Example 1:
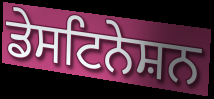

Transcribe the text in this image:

ਡੇਸਟਿਨੇਸ਼ਨ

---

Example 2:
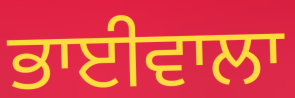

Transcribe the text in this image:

ਭਾਈਵਾਲਾ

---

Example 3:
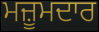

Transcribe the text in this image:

ਮਜ਼ੂਮਦਾਰ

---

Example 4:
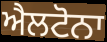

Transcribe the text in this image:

ਐਲਟੋਨਾ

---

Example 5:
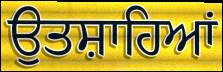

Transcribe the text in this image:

ਉਤਸ਼ਾਹਿਆਂ